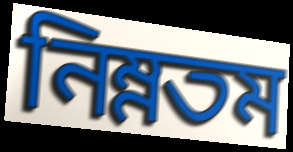
নিম্নতম